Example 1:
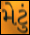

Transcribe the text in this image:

મેટું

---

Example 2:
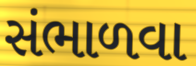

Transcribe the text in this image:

સંભાળવા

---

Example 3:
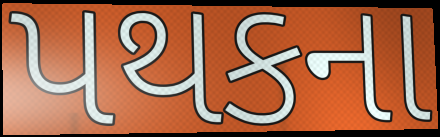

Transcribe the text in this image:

પથકના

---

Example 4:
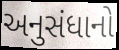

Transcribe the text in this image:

અનુસંધાનો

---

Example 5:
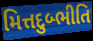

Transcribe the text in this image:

મિત્તદુબ્ભીતિ